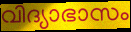
വിദ്യാഭാസം